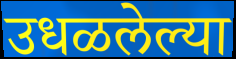
उधळलेल्या